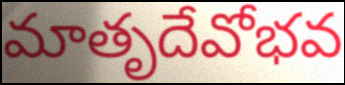
మాతృదేవోభవ